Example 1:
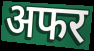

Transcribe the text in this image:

अफर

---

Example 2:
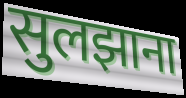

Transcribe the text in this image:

सुलझाना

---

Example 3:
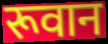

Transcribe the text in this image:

रूवान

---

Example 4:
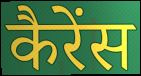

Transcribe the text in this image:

कैरेंस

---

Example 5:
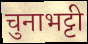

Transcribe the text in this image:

चुनाभट्टी